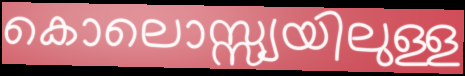
കൊലൊസ്സ്യയിലുള്ള